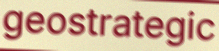
geostrategic